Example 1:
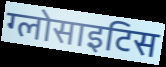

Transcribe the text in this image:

ग्लोसाइटिस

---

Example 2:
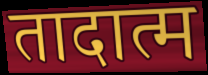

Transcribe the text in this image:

तादात्म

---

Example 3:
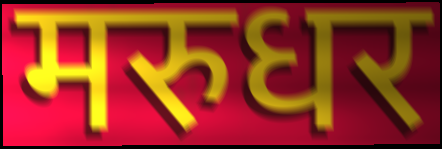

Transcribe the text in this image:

मरुधर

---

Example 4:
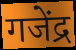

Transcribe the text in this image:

गजेंद्र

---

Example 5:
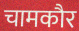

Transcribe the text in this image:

चामकौर